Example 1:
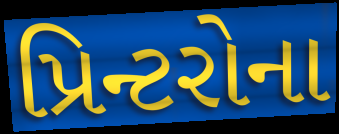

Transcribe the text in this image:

પ્રિન્ટરોના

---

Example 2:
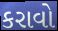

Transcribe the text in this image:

કરાવો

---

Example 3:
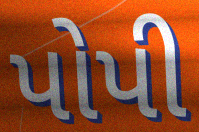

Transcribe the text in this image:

પોપી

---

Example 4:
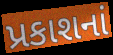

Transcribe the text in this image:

પ્રકાશનાં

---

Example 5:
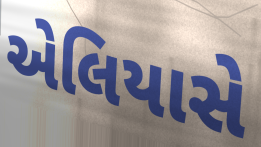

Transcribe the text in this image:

એલિયાસે